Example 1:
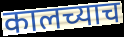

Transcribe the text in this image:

कालच्याच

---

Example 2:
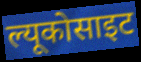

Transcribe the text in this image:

ल्यूकोसाइट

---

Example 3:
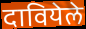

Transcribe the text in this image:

दावियेले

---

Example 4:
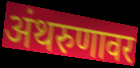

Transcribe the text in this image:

अंथरुणावर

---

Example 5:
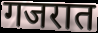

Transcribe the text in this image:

गजरात